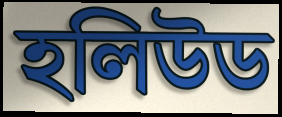
হলিউড